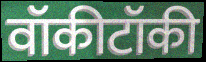
वॉकीटॉकी